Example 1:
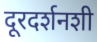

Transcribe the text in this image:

दूरदर्शनशी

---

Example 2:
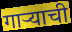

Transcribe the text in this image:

गाऱ्याची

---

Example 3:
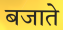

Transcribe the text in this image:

बजाते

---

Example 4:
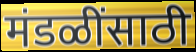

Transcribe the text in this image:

मंडळींसाठी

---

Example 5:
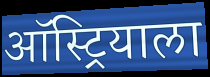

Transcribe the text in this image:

ऑस्ट्रियाला